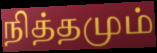
நித்தமும்